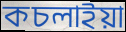
কচলাইয়া